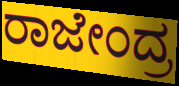
ರಾಜೇಂದ್ರ